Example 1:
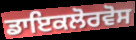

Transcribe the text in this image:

ਡਾਇਕਲੋਰਵੋਸ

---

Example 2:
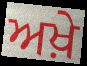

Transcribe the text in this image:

ਅਖ਼ੇ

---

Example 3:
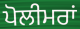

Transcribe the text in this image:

ਪੋਲੀਮਰਾਂ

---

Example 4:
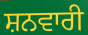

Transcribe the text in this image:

ਸ਼ਨਵਾਰੀ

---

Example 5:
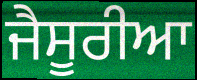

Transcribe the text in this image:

ਜੈਸੂਰੀਆ